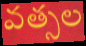
వత్సల